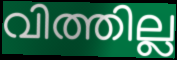
വിത്തില്ല